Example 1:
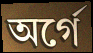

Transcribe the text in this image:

অর্গে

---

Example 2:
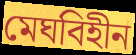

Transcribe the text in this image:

মেঘবিহীন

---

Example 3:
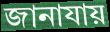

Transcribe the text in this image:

জানাযায়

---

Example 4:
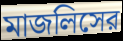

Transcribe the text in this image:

মাজলিসের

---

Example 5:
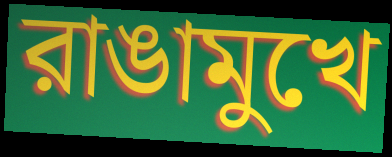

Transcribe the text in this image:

রাঙামুখে